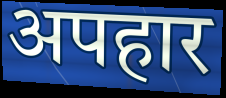
अपहार